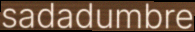
sadadumbre